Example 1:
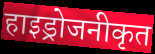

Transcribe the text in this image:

हाइड्रोजनीकृत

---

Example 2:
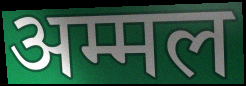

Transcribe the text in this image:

अम्मल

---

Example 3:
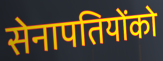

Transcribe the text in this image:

सेनापतियोंको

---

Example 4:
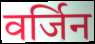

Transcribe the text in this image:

वर्जिन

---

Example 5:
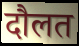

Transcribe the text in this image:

दौलत